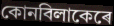
কোনবিলাকেৰে